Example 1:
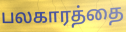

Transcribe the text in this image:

பலகாரத்தை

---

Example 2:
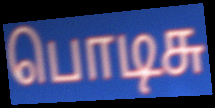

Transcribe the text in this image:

பொடிசு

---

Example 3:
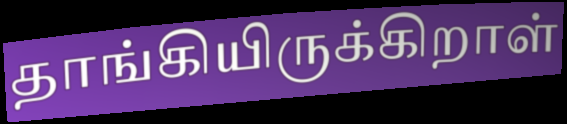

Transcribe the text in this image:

தாங்கியிருக்கிறாள்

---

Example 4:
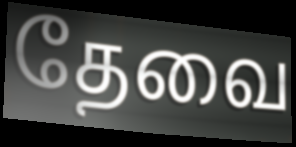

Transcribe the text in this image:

தேவை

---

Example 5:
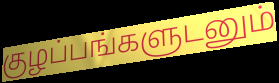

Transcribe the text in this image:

குழப்பங்களுடனும்